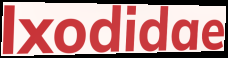
Ixodidae